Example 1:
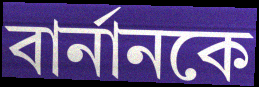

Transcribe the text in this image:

বাৰ্নানকে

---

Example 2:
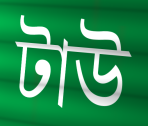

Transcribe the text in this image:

টাউ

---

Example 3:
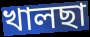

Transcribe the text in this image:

খালছা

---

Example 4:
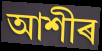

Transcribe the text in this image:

আশীৰ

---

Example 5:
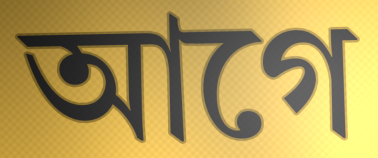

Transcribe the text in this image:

আগে